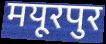
मयूरपुर